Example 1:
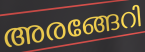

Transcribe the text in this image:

അരങ്ങേറി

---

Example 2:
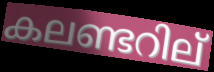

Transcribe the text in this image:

കലണ്ടറില്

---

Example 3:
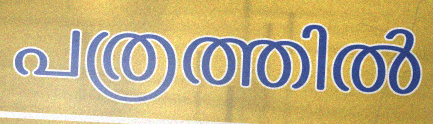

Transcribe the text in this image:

പത്രത്തിൽ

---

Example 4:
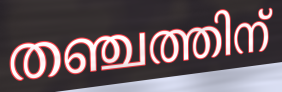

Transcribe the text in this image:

തഞ്ചത്തിന്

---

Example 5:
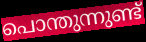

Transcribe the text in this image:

പൊന്തുന്നുണ്ട്